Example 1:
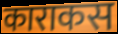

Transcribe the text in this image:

काराकस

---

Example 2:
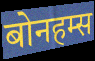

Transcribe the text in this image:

बोनहम्स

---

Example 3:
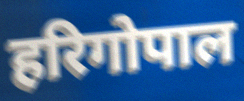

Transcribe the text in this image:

हरिगोपाल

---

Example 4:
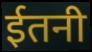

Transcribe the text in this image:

ईतनी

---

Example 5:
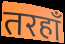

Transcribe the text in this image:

तरहाँ